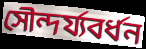
সৌন্দৰ্য্যবৰ্ধন